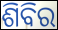
ଶିବିର